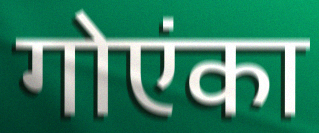
गोएंका